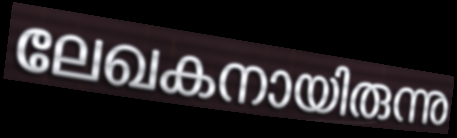
ലേഖകനായിരുന്നു